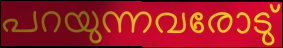
പറയുന്നവരോടു്